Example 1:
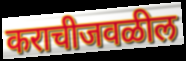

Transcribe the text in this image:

कराचीजवळील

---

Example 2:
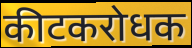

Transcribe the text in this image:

कीटकरोधक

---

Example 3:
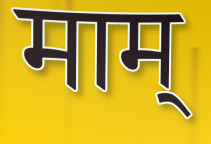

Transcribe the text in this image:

माम्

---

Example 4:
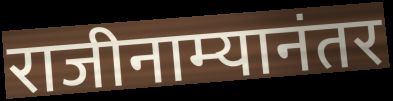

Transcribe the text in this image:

राजीनाम्यानंतर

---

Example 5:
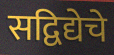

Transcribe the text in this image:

सद्विद्येचे